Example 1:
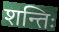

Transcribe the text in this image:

शन्तिः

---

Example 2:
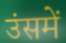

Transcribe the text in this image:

उंसमें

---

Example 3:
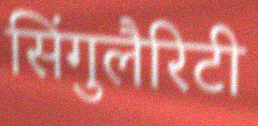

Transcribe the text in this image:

सिंगुलैरिटी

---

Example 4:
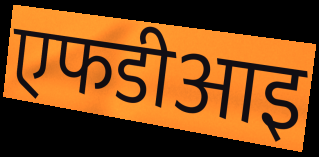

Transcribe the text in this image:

एफडीआइ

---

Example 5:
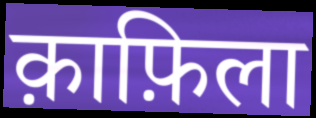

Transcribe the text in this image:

क़ाफ़िला